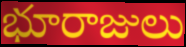
భూరాజులు